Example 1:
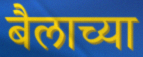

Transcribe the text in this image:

बैलाच्या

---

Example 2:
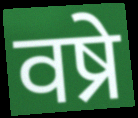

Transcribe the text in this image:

वष्रे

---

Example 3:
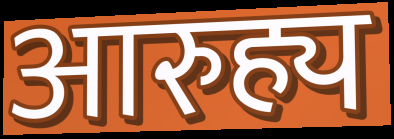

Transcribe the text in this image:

आरुह्य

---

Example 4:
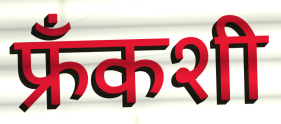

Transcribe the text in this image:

फ्रँकशी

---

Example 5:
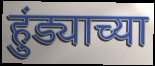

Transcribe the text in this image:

हुंड्याच्या